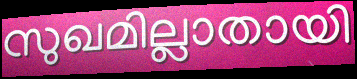
സുഖമില്ലാതായി